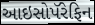
આઇસોપૅરેફિન